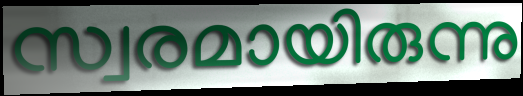
സ്വരമായിരുന്നു